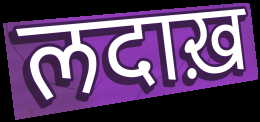
लदाख़